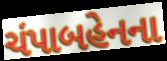
ચંપાબહેનના